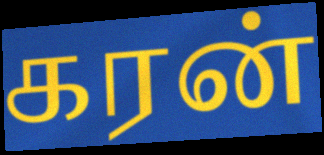
கரன்